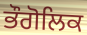
ਭੌਗੋਲਿਕ